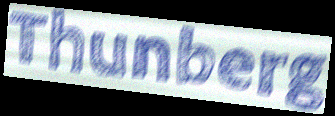
Thunberg